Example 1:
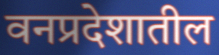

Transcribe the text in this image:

वनप्रदेशातील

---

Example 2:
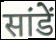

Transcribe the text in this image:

सांडें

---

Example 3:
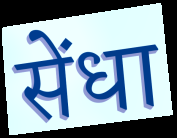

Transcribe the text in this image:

सेंधा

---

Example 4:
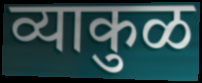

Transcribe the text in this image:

व्याकुळ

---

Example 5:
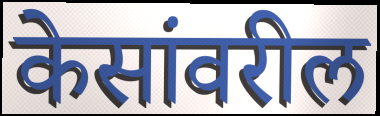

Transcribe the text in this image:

केसांवरील